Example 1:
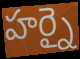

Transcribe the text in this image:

హర్నై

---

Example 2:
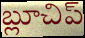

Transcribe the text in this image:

బ్లూచిప్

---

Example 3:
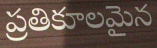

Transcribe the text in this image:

ప్రతికూలమైన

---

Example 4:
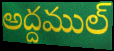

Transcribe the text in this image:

అద్దముల్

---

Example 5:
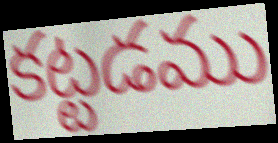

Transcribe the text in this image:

కట్టడము